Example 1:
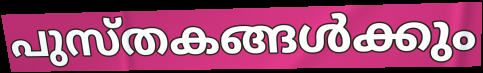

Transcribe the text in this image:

പുസ്തകങ്ങൾക്കും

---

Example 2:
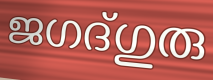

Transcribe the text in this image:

ജഗദ്ഗുരു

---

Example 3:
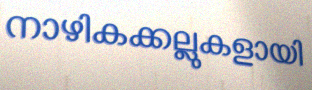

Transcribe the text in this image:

നാഴികക്കല്ലുകളായി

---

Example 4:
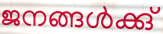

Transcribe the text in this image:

ജനങ്ങൾക്കു്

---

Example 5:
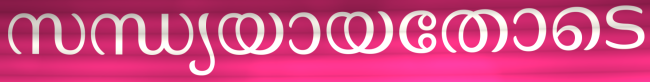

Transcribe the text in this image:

സന്ധ്യയായതോടെ